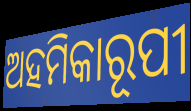
ଅହମିକାରୂପୀ